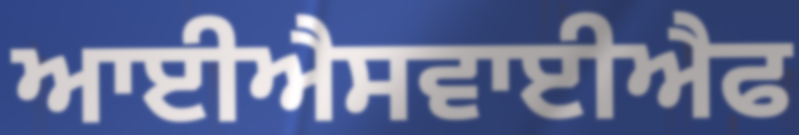
ਆਈਐਸਵਾਈਐਫ